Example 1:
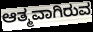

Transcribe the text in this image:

ಆತ್ಮವಾಗಿರುವ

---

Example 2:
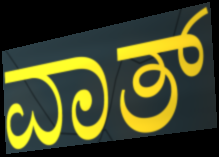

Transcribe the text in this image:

ವಾತ್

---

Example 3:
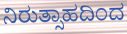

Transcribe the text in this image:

ನಿರುತ್ಸಾಹದಿಂದ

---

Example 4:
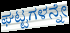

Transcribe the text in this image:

ಘಟ್ಟಗಳನ್ನೇ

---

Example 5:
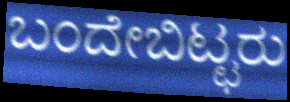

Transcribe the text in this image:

ಬಂದೇಬಿಟ್ಟರು